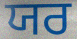
ਯਰ